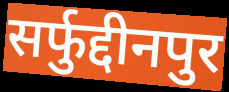
सर्फुद्दीनपुर